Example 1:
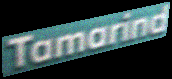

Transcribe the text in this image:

Tamarind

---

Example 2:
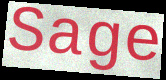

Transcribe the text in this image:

Sage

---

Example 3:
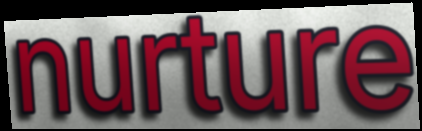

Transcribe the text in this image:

nurture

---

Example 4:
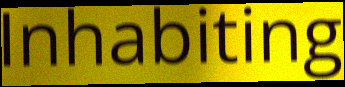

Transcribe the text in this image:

Inhabiting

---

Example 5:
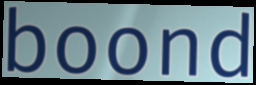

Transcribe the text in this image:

boond